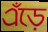
এঁড়ে